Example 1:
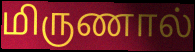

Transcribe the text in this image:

மிருணால்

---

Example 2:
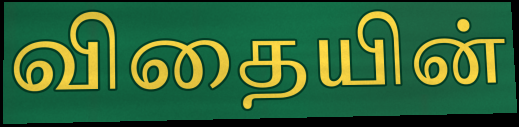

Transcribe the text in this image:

விதையின்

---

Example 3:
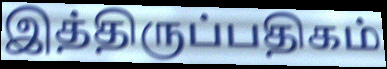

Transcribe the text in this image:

இத்திருப்பதிகம்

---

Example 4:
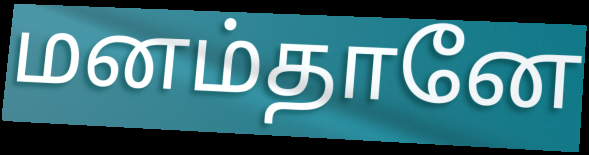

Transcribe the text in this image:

மனம்தானே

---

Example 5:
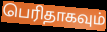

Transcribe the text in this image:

பெரிதாகவும்